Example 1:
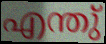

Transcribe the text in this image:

എന്തു്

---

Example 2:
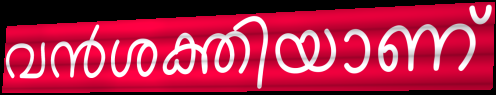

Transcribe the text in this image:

വൻശക്തിയാണ്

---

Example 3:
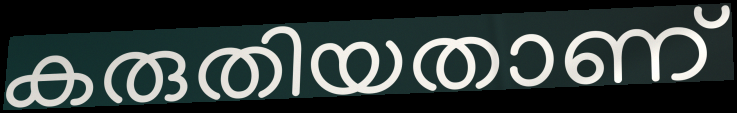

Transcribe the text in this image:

കരുതിയതാണ്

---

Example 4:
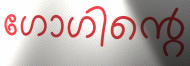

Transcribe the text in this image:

ഗോഗിന്റെ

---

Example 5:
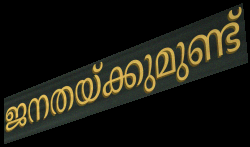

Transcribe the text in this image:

ജനതയ്ക്കുമുണ്ട്